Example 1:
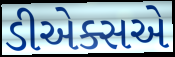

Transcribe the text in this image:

ડીએક્સએ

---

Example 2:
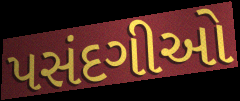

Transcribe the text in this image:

પસંદગીઓ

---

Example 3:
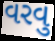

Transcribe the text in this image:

વરવુ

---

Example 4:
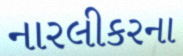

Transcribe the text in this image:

નારલીકરના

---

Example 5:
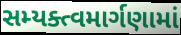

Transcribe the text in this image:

સમ્યક્ત્વમાર્ગણામાં